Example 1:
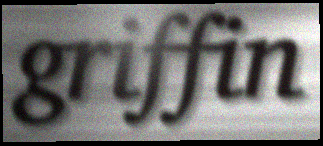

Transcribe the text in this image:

griffin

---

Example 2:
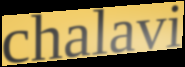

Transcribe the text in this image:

chalavi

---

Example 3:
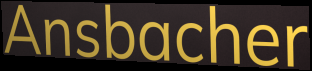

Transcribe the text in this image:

Ansbacher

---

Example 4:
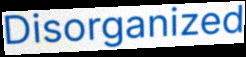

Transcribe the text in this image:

Disorganized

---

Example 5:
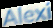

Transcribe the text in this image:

Alexi